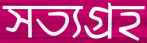
সত্যগ্ৰহ